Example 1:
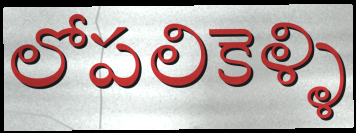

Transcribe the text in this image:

లోపలికెళ్ళి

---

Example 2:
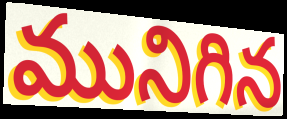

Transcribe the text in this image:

మునిగిన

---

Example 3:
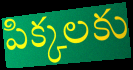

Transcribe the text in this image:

పిక్కలకు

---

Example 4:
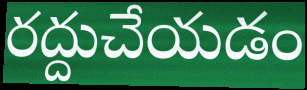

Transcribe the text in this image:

రద్దుచేయడం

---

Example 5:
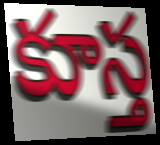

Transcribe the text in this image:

కూస్త